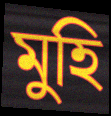
মুহি